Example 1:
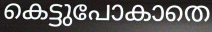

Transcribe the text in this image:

കെട്ടുപോകാതെ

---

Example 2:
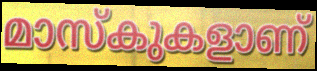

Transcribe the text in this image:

മാസ്കുകളാണ്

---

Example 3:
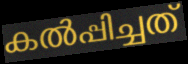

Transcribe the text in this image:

കൽപ്പിച്ചത്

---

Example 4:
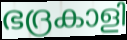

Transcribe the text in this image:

ഭദ്രകാളി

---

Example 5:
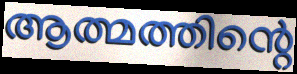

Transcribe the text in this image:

ആത്മത്തിന്റെ